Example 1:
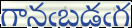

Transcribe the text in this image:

గానఁబడఁగ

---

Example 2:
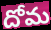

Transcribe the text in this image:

దోమ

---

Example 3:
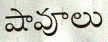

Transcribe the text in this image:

షావూలు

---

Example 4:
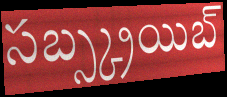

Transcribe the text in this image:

సబ్స్క్రయిబ్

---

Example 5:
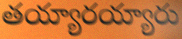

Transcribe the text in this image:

తయ్యారయ్యారు